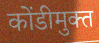
कोंडीमुक्त